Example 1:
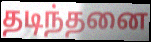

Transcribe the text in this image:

தடிந்தனை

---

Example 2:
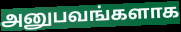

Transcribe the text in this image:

அனுபவங்களாக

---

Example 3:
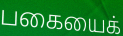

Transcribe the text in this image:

பகையைக்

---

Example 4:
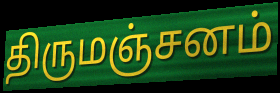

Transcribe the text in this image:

திருமஞ்சனம்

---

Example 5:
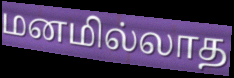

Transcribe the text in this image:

மனமில்லாத